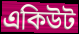
একিউট